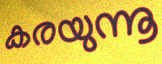
കരയുന്നൂ